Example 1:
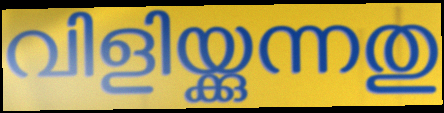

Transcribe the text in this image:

വിളിയ്ക്കുന്നതു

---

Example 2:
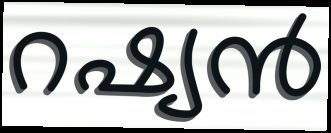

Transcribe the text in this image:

റഷ്യൻ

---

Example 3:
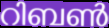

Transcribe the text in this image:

റിബൺ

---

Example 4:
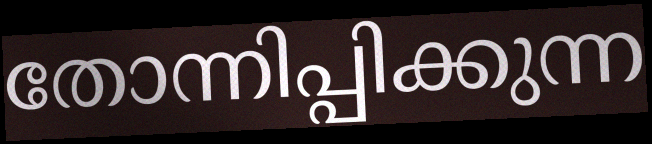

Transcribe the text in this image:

തോന്നിപ്പിക്കുന്ന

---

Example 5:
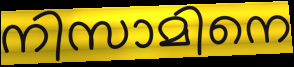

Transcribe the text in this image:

നിസാമിനെ